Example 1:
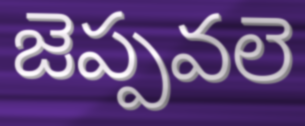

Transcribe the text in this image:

జెప్పవలె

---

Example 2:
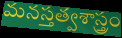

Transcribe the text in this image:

మనస్తత్వశాస్త్రం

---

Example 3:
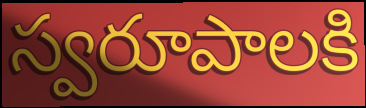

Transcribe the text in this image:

స్వరూపాలకి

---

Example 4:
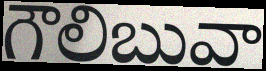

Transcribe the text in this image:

గౌలిబువా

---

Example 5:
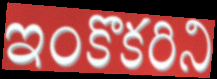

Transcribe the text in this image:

ఇంకొకరిని